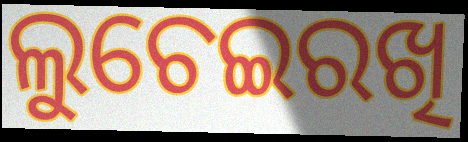
ଲୁଚେଇରଖି